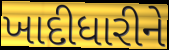
ખાદીધારીને